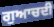
ਗੁਆਚਦੀ